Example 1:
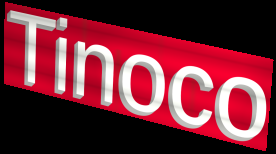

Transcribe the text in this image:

Tinoco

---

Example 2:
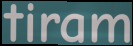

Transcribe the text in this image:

tiram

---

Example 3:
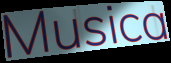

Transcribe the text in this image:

Musica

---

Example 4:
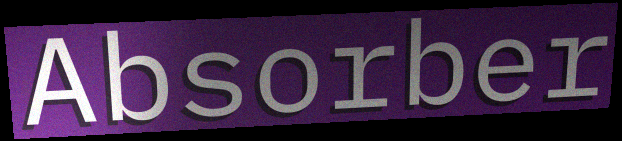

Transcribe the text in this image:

Absorber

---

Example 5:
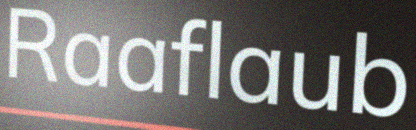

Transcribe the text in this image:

Raaflaub